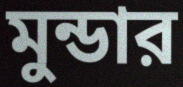
মুন্ডার